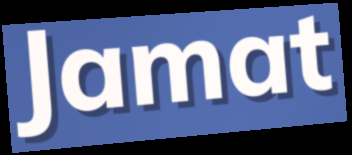
Jamat